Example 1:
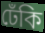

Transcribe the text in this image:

ঢেঁকি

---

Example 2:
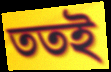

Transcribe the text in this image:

ততই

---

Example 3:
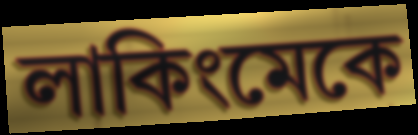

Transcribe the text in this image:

লাকিংমেকে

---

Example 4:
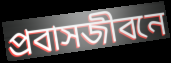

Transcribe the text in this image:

প্রবাসজীবনে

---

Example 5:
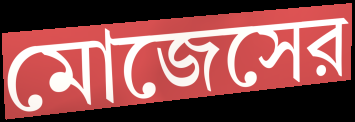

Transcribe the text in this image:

মোজেসের